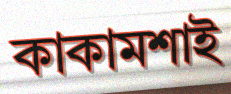
কাকামশাই